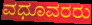
ವಧೂವರರು